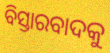
ବିସ୍ତାରବାଦକୁ